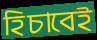
হিচাবেই